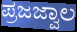
ಪ್ರಜಜ್ವಾಲ